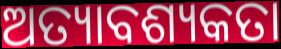
ଅତ୍ୟାବଶ୍ୟକତା